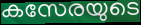
കസേരയുടെ